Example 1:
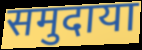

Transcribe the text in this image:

समुदाया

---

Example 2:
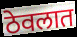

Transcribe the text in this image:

ठेवलात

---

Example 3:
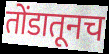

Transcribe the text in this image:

तोंडातूनच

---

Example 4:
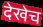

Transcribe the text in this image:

देखेच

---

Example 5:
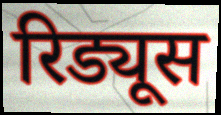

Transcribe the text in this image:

रिड्यूस